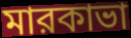
মারকাভা